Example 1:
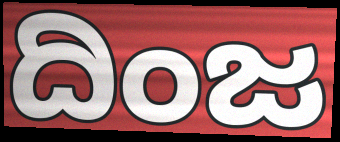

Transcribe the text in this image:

ದಿಂಜ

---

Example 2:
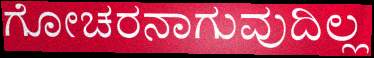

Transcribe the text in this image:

ಗೋಚರನಾಗುವುದಿಲ್ಲ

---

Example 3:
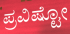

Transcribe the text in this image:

ಪ್ರವಿಷ್ಟೋ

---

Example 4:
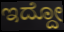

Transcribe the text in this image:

ಇದ್ದೋ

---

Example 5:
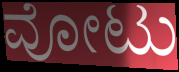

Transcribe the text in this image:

ವೋಟು